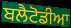
ਬਲੈਟੋਡੀਆ